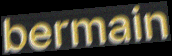
bermain